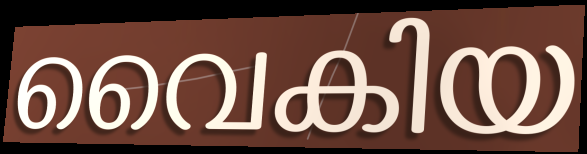
വൈകിയ